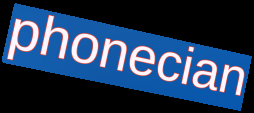
phonecian